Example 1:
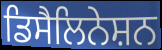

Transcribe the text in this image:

ਡਿਸੈਲਿਨੇਸ਼ਨ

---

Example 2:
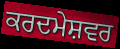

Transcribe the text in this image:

ਕਰਦਮੇਸ਼ਵਰ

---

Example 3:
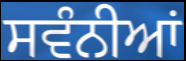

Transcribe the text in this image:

ਸਵੰਨੀਆਂ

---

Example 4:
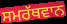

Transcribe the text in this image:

ਸਮਰੱਥਵਾਨ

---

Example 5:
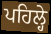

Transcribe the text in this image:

ਪਹਿਲ੍ਹੇ